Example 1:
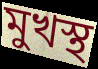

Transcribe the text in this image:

মুখস্থ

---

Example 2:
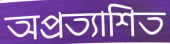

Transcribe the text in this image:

অপ্ৰত্যাশিত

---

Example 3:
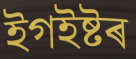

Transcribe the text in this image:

ইগইষ্টৰ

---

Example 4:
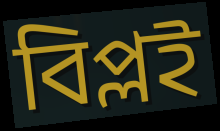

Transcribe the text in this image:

বিপ্লই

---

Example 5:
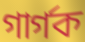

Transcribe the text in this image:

গাৰ্গক